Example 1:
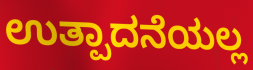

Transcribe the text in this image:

ಉತ್ಪಾದನೆಯಲ್ಲ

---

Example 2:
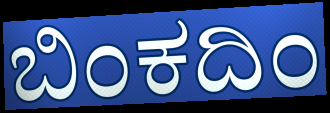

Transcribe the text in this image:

ಬಿಂಕದಿಂ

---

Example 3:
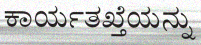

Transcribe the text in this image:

ಕಾರ್ಯತಖ್ತೆಯನ್ನು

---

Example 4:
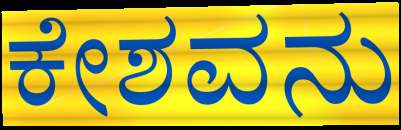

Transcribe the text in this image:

ಕೇಶವನು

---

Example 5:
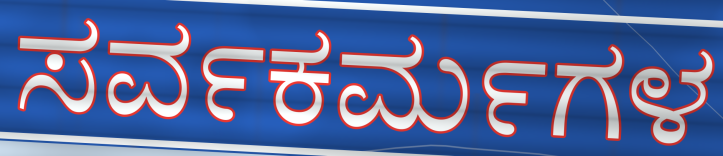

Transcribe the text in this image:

ಸರ್ವಕರ್ಮಗಳ